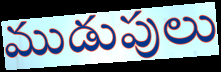
ముడుపులు